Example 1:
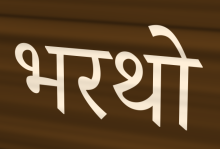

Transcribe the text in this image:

भरथो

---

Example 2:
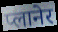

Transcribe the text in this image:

प्लानेर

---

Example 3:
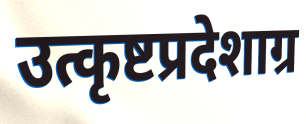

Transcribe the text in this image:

उत्कृष्टप्रदेशाग्र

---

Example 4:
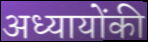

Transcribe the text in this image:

अध्यायोंकी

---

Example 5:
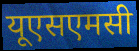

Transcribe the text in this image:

यूएसएमसी